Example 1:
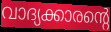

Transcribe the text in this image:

വാദ്യക്കാരന്റെ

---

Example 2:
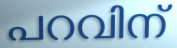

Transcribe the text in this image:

പറവിന്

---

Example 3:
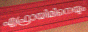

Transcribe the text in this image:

എഫ്രായിമിനെയും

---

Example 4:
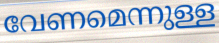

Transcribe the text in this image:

വേണമെന്നുള്ള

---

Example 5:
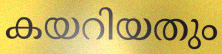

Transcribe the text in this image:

കയറിയതും